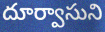
దూర్వాసుని